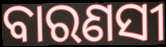
ବାରଣସୀ